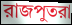
রাজপুতরা